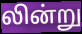
லின்று